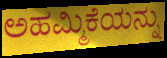
ಅಹಮ್ಮಿಕೆಯನ್ನು